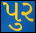
પુર